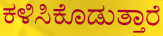
ಕಳಿಸಿಕೊಡುತ್ತಾರೆ